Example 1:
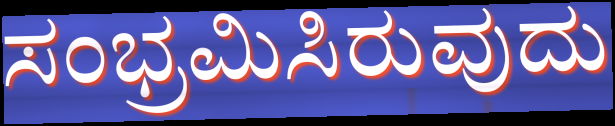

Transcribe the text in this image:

ಸಂಭ್ರಮಿಸಿರುವುದು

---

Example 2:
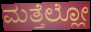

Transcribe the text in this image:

ಮತ್ತೆಲ್ಲೋ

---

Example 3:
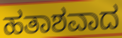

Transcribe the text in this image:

ಹತಾಶವಾದ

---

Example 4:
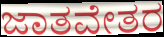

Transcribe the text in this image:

ಜಾತವೇತರ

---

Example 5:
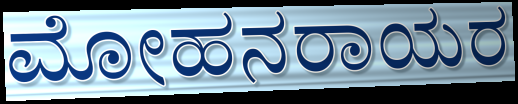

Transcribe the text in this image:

ಮೋಹನರಾಯರ